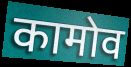
कामोव